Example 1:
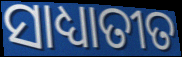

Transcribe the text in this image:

ସାଧ୍ୟାତୀତ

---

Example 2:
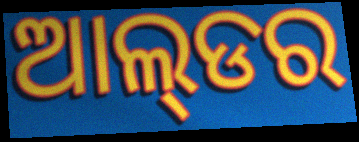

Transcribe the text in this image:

ଆଲ୍‌ଡର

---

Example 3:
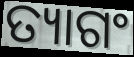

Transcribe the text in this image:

ତ୍ୟାଗଂ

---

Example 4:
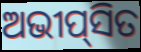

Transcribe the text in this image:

ଅଭୀପ୍‌ସିତ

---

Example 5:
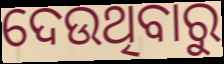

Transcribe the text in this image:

ଦେଉଥିବାରୁ